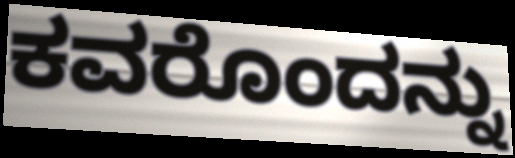
ಕವರೊಂದನ್ನು